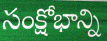
సంక్షోభాన్ని